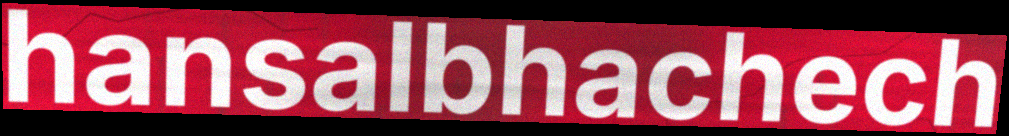
hansalbhachech